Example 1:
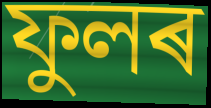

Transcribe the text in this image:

ফুলৰ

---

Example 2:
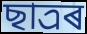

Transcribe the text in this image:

ছাত্ৰৰ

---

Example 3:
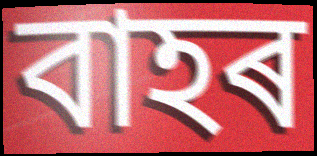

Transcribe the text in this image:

বাহৰ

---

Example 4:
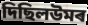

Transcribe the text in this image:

দিছিলউমৰ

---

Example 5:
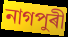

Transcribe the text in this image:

নাগপুৰী